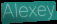
Alexey